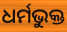
ଧର୍ମଭୁକ୍ତ